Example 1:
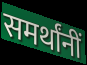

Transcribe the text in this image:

समर्थांनीं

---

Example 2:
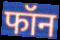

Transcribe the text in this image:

फॉन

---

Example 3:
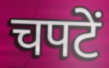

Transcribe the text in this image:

चपटें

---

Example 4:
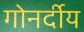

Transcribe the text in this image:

गोनर्दीय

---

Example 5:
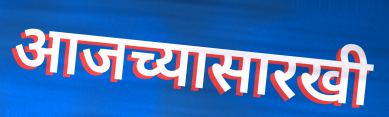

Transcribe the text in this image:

आजच्यासारखी